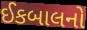
ઈકબાલનો